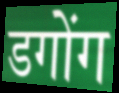
डगोंग